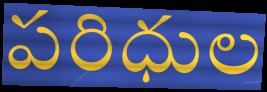
పరిధుల